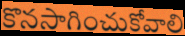
కొనసాగించుకోవాలి